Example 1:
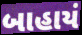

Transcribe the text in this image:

બાહાયં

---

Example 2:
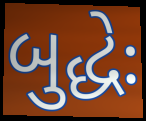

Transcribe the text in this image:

બુદ્ધેઃ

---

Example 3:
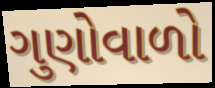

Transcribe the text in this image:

ગુણોવાળો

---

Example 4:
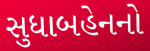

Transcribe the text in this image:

સુધાબહેનનો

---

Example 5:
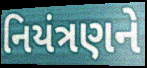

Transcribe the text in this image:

નિયંત્રણને